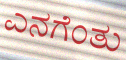
ಎನಗೆಂತು